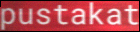
pustakat